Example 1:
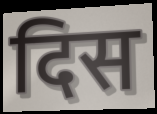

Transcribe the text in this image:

दिस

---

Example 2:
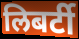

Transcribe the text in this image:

लिबर्टी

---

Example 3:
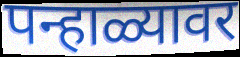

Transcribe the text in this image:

पन्हाळ्यावर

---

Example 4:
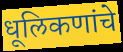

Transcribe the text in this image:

धूलिकणांचे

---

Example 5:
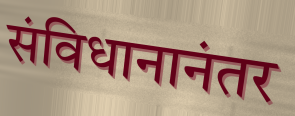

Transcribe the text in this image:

संविधानानंतर